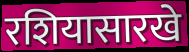
रशियासारखे